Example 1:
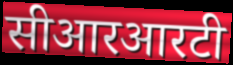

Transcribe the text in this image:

सीआरआरटी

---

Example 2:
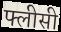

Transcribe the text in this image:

फ्लीसी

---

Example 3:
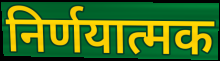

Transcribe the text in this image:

निर्णयात्मक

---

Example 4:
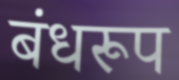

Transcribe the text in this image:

बंधरूप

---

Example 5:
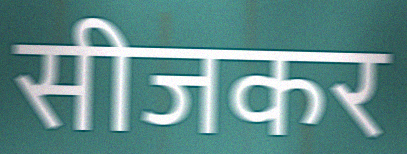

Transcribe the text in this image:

सीजकर